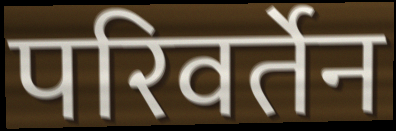
परिवर्तेन